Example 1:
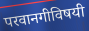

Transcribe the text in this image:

परवानगीविषयी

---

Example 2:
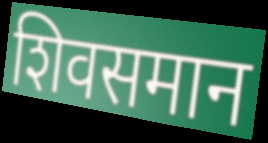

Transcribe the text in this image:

शिवसमान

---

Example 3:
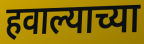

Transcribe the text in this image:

हवाल्याच्या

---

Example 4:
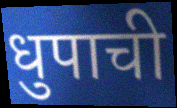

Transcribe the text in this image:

धुपाची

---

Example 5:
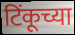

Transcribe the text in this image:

टिंकूच्या